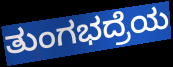
ತುಂಗಭದ್ರೆಯ